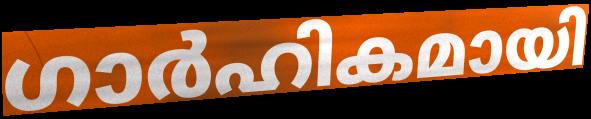
ഗാർഹികമായി